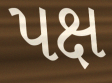
પક્ષ